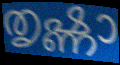
തൃഷ്ണാ